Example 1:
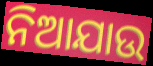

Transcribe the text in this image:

ନିଆଯାଉ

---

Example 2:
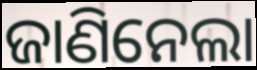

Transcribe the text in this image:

ଜାଣିନେଲା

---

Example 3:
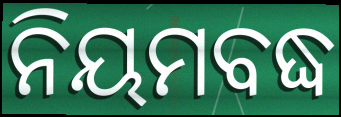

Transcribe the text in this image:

ନିୟମବଦ୍ଧ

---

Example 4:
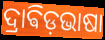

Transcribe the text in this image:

ଦ୍ରାଵିଡ଼ଭାଷା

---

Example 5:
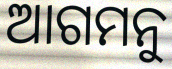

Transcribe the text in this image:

ଆଗମନୁ